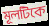
মূলটিকে